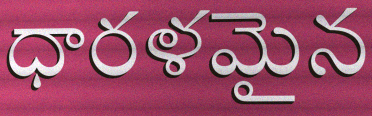
ధారళమైన